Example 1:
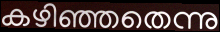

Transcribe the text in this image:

കഴിഞ്ഞതെന്നു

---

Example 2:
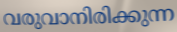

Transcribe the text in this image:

വരുവാനിരിക്കുന്ന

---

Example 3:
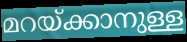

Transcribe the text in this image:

മറയ്ക്കാനുള്ള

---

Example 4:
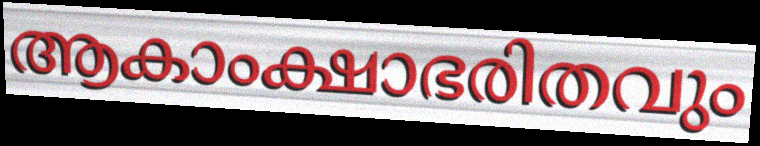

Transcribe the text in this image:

ആകാംക്ഷാഭരിതവും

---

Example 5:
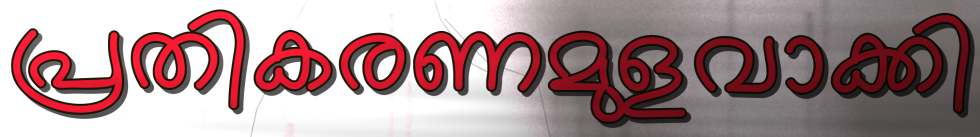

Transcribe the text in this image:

പ്രതികരണമുളവാക്കി